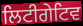
ਲਿਟੀਗੇਟਿਵ